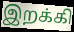
இறக்கி